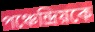
পঞ্চেন্দ্রিয়কে